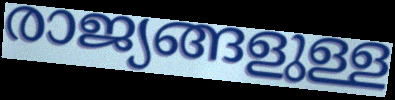
രാജ്യങ്ങളുള്ള